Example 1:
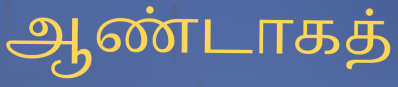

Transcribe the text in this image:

ஆண்டாகத்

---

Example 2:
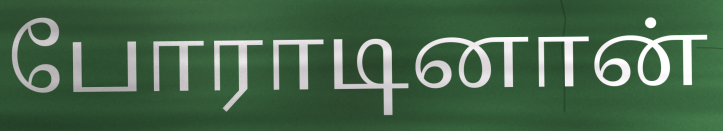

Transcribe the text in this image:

போராடினான்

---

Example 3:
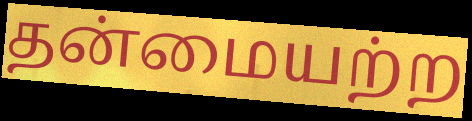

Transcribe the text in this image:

தன்மையற்ற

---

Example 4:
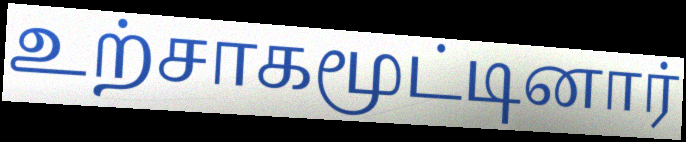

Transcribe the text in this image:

உற்சாகமூட்டினார்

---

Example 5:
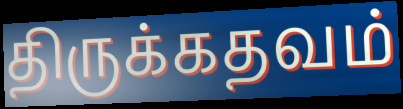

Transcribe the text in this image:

திருக்கதவம்